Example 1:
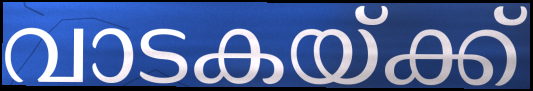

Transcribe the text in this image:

വാടകയ്ക്ക്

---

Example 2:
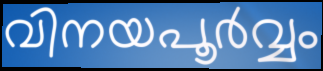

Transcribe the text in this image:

വിനയപൂർവ്വം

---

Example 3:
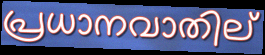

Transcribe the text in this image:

പ്രധാനവാതില്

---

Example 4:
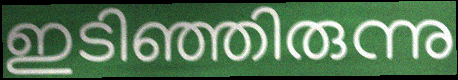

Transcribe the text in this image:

ഇടിഞ്ഞിരുന്നു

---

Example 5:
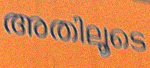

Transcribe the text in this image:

അതിലൂടെ